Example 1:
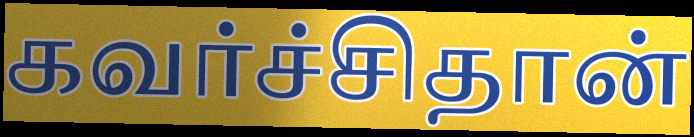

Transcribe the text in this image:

கவர்ச்சிதான்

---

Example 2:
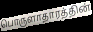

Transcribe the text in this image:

பொருளாதாரத்தின்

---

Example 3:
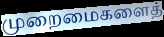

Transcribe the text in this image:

முறைமைகளைத்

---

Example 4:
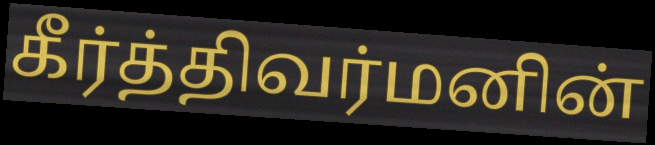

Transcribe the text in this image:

கீர்த்திவர்மனின்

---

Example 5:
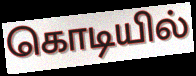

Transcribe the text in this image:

கொடியில்